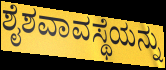
ಶೈಶವಾವಸ್ಥೆಯನ್ನು